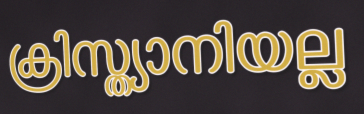
ക്രിസ്ത്യാനിയല്ല